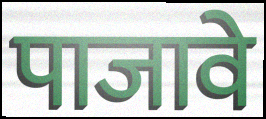
पाजावे